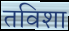
तविशा